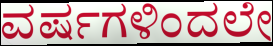
ವರ್ಷಗಳಿಂದಲೇ